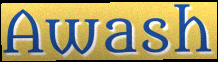
Awash